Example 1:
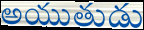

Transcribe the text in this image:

అయుతుడు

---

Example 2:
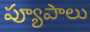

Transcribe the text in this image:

ప్యూపాలు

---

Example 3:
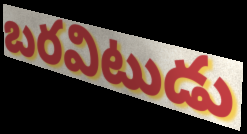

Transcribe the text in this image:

బరవిటుడు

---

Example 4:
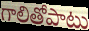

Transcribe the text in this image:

గాలితోపాటు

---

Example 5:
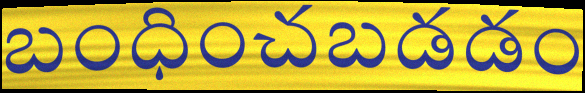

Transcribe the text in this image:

బంధించబడడం